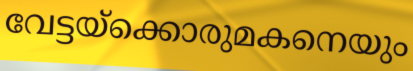
വേട്ടയ്ക്കൊരുമകനെയും